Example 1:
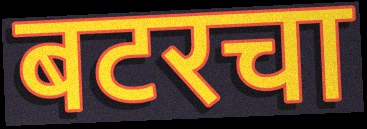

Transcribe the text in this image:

बटरचा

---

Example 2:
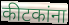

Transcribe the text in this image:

कीटकांना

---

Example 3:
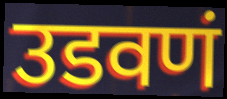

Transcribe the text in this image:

उडवणं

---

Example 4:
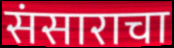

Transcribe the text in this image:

संसाराचा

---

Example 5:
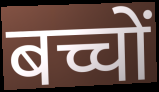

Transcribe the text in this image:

बच्चों